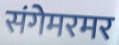
संगेमरमर